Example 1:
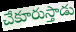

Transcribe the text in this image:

చేకూరుస్తాడు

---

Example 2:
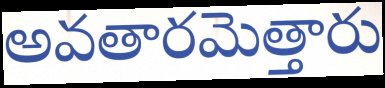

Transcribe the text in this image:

అవతారమెత్తారు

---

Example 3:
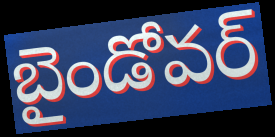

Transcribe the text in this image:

బైండోవర్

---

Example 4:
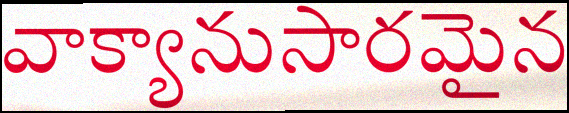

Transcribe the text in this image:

వాక్యానుసారమైన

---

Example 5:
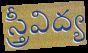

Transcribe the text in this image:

స్త్రీవిద్య